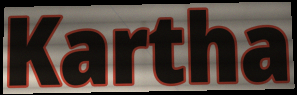
Kartha